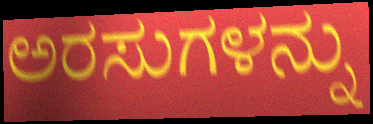
ಅರಸುಗಳನ್ನು